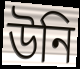
উনি